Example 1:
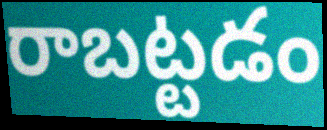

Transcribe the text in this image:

రాబట్టడం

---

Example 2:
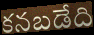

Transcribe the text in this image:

కనబడేది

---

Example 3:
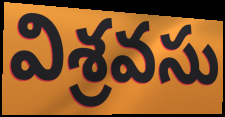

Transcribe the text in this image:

విశ్రవసు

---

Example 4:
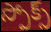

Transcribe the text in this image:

స్పోక్స్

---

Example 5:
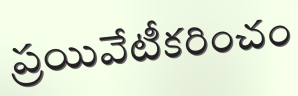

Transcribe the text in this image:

ప్రయివేటీకరించం